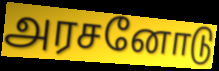
அரசனோடு